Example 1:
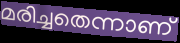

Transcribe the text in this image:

മരിച്ചതെന്നാണ്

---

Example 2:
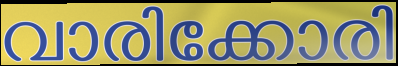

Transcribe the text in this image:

വാരിക്കോരി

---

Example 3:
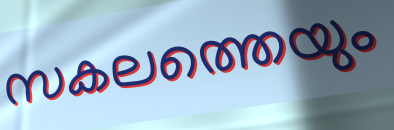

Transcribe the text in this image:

സകലത്തെയും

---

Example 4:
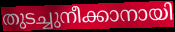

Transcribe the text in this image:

തുടച്ചുനീക്കാനായി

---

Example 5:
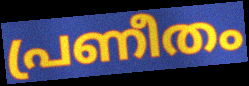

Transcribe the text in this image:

പ്രണീതം